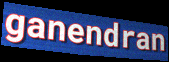
ganendran